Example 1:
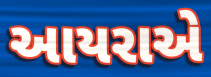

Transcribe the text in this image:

આયરાએ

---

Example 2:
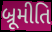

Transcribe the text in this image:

બ્રૂમીતિ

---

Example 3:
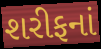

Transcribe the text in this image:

શરીફનાં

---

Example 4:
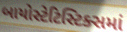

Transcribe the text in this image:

બાયોસ્ટેટિસ્ટિક્સમાં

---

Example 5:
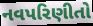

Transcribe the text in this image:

નવપરિણીતો